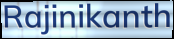
Rajinikanth